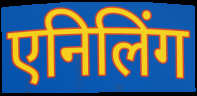
एनिलिंग